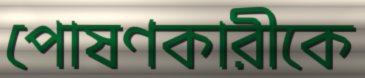
পোষণকারীকে